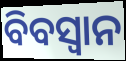
ବିବସ୍ୱାନ